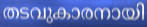
തടവുകാരനായി